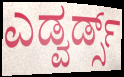
ಎಡ್ವರ್ಡ್ಸ್